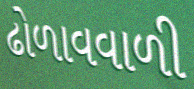
ઢોળાવવાળી